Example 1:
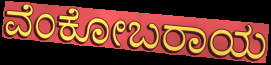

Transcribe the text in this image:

ವೆಂಕೋಬರಾಯ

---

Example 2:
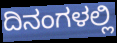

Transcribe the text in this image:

ದಿನಂಗಳಲ್ಲಿ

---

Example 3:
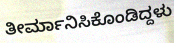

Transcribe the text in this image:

ತೀರ್ಮಾನಿಸಿಕೊಂಡಿದ್ದಳು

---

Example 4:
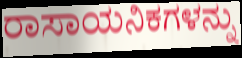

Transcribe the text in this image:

ರಾಸಾಯನಿಕಗಳನ್ನು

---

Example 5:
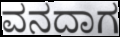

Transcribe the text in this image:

ವನದಾಗ